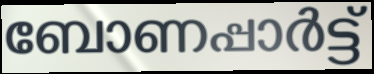
ബോണപ്പാർട്ട്